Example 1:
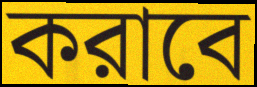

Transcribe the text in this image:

করাবে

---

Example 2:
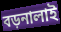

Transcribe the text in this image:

বড়নালাই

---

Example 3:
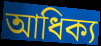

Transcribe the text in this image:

আধিক্য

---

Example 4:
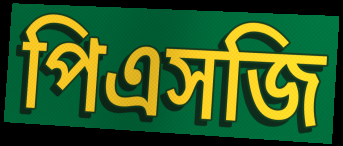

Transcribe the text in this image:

পিএসজি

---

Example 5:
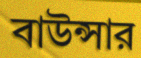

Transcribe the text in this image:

বাউন্সার